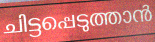
ചിട്ടപ്പെടുത്താൻ